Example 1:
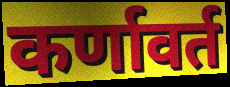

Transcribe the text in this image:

कर्णावर्त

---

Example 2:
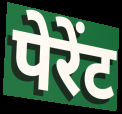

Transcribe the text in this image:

पेरेंट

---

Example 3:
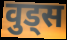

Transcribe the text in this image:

वुड्स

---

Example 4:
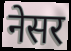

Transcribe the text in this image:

नेसर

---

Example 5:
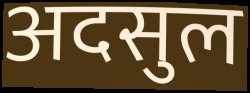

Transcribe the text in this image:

अदसुल